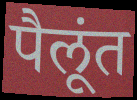
पैलूंत